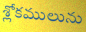
శ్లోకములును